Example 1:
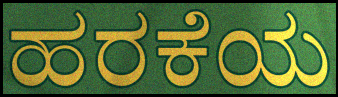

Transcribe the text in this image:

ಹರಕೆಯ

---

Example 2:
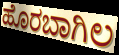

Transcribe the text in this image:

ಹೊರಬಾಗಿಲ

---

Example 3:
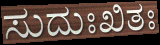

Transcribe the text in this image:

ಸುದುಃಖಿತಃ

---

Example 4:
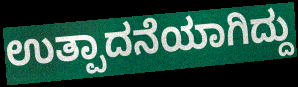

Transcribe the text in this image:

ಉತ್ಪಾದನೆಯಾಗಿದ್ದು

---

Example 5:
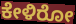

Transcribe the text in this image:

ಕೇಳಿರೋ